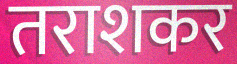
तराशकर